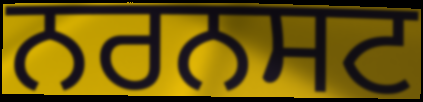
ਨਰਨਸਟ